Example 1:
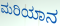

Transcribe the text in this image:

ಮರಿಯಾನ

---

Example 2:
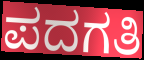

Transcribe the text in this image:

ಪದಗತಿ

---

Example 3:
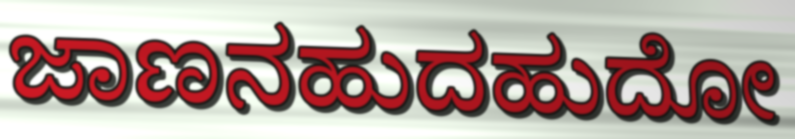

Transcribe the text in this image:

ಜಾಣನಹುದಹುದೋ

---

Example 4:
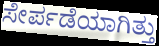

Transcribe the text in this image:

ಸೇರ್ಪಡೆಯಾಗಿತ್ತು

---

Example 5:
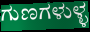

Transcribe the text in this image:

ಗುಣಗಳುಳ್ಳ